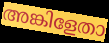
അങ്കിളേതാ